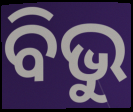
ବିଭୁ